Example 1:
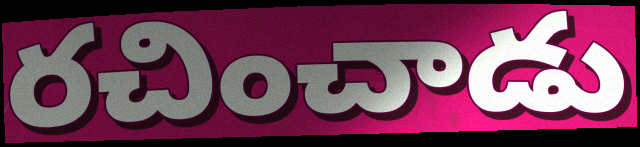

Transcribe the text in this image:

రచించాడు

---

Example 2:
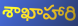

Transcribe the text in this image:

శాఖాహారి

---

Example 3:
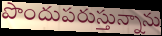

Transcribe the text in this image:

పొందుపరుస్తున్నాను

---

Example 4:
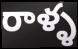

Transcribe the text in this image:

రాళ్ళ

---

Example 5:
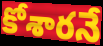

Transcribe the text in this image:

కోశారనే